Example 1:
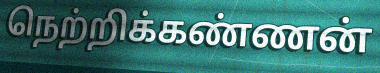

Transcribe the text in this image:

நெற்றிக்கண்ணன்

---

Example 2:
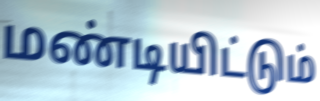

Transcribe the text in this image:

மண்டியிட்டும்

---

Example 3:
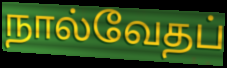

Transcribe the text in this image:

நால்வேதப்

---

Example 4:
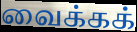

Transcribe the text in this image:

வைக்கக்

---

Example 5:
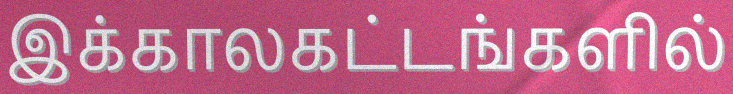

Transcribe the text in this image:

இக்காலகட்டங்களில்